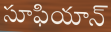
సూఫియాన్